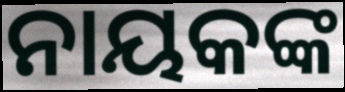
ନାୟକଙ୍କ